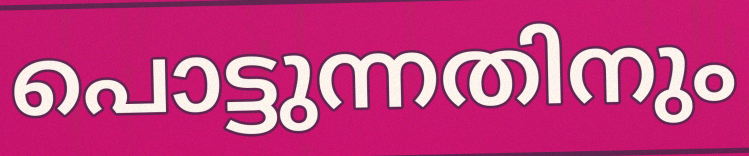
പൊട്ടുന്നതിനും